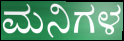
ಮನಿಗಳ